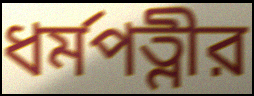
ধর্মপত্নীর